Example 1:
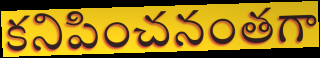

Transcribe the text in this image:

కనిపించనంతగా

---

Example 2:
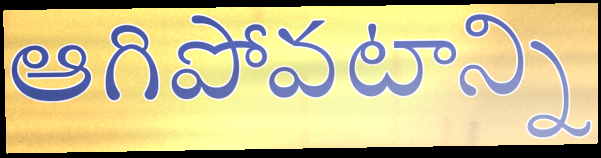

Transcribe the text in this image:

ఆగిపోవటాన్ని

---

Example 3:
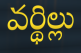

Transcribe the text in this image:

వర్థిల్లు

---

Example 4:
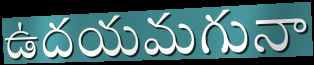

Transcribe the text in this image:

ఉదయమగునా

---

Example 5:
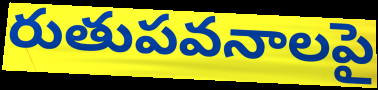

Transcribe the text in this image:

రుతుపవనాలపై